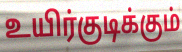
உயிர்குடிக்கும்